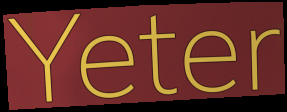
Yeter